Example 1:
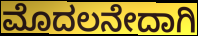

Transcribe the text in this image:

ಮೊದಲನೇದಾಗಿ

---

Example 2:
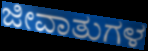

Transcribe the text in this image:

ಜೀವಾತುಗಳ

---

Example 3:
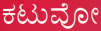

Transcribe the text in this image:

ಕಟುವೋ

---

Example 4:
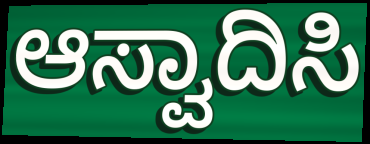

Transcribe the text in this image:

ಆಸ್ವಾದಿಸಿ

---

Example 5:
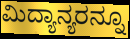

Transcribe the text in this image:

ಮಿದ್ಯಾನ್ಯರನ್ನೂ